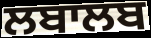
ਲਬਾਲਬ